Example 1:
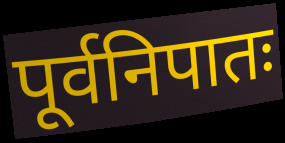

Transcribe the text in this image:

पूर्वनिपातः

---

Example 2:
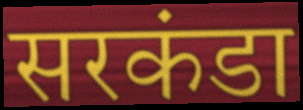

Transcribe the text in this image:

सरकंडा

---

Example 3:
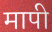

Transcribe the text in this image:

मापी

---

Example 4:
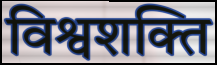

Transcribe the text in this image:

विश्वशक्ति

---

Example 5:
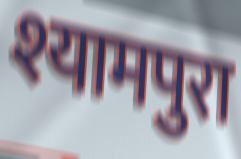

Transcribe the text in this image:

श्यामपुरा